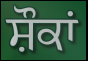
ਸ਼ੌਕਾਂ